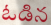
ఓడిన